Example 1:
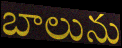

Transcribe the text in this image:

బాలును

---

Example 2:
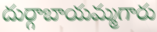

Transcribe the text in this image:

దుర్గాబాయమ్మగారు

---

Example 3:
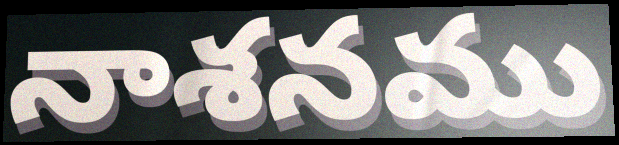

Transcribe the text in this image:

నాశనము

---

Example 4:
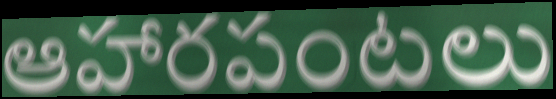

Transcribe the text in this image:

ఆహారపంటలు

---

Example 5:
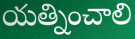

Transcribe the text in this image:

యత్నించాలి